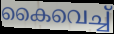
കൈവെച്ച്